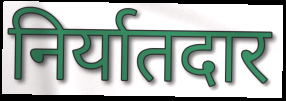
निर्यातदार